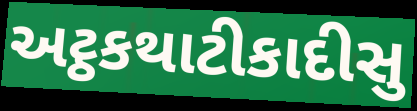
અટ્ઠકથાટીકાદીસુ